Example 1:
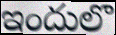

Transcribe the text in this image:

ఇందులొ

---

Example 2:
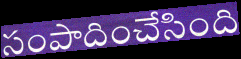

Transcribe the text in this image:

సంపాదించేసింది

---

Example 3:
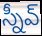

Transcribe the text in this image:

స్నీవ్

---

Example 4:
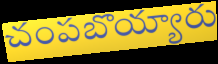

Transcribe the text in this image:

చంపబొయ్యారు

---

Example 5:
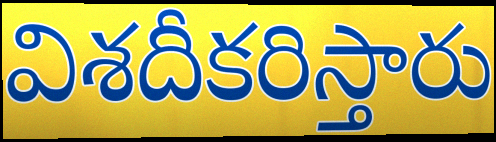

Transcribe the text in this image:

విశదీకరిస్తారు